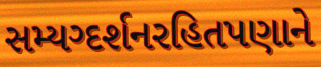
સમ્યગ્દર્શનરહિતપણાને